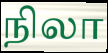
நிலா